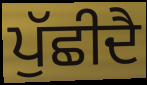
ਪੁੱਛੀਦੈ